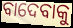
ବାଦେବାକୁ